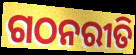
ଗଠନରୀତି